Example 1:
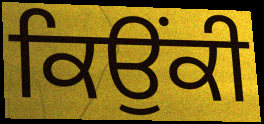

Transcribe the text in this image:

ਕਿਉਂਕੀ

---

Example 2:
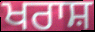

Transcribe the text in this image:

ਖਰਾਸ਼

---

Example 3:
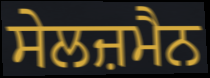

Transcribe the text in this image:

ਸੇਲਜ਼ਮੈਨ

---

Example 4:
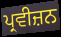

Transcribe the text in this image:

ਪ੍ਰਵੀਜ਼ਨ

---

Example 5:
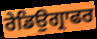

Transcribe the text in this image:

ਰੇਡਿਉਗ੍ਰਾਫਰ